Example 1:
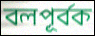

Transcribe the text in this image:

বলপূৰ্বক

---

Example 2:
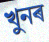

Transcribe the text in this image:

খুনৰ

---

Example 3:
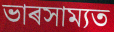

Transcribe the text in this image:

ভাৰসাম্যত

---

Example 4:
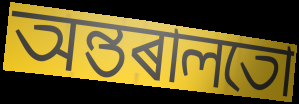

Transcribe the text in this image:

অন্তৰালতো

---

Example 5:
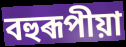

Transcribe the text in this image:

বহুৰূপীয়া